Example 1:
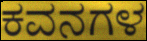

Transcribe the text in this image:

ಕವನಗಳ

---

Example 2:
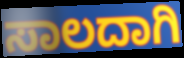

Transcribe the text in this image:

ಸಾಲದಾಗಿ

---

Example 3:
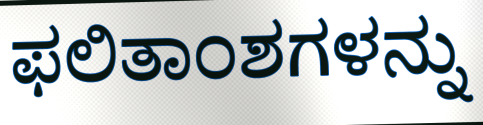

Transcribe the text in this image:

ಫಲಿತಾಂಶಗಳನ್ನು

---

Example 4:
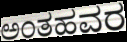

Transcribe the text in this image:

ಅಂತಹವರ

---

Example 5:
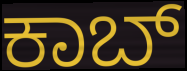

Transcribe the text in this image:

ಕಾಬ್